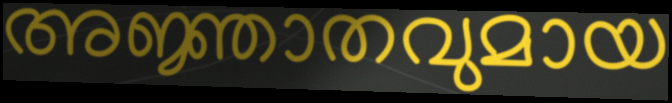
അജ്ഞാതവുമായ